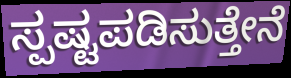
ಸ್ಪಷ್ಟಪಡಿಸುತ್ತೇನೆ